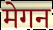
मेगन